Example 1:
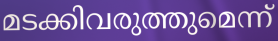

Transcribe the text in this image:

മടക്കിവരുത്തുമെന്ന്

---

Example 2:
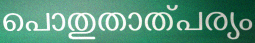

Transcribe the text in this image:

പൊതുതാത്പര്യം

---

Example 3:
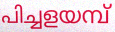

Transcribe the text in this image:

പിച്ചളയമ്പ്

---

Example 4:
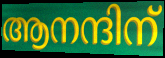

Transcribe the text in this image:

ആനന്ദിന്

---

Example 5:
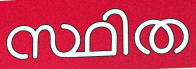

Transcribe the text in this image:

സ്ഥിത